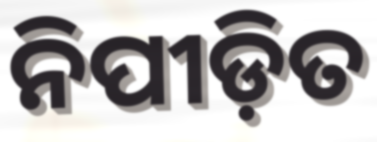
ନିପୀଡ଼ିତ